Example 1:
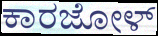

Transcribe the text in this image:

ಕಾರಜೋಳ್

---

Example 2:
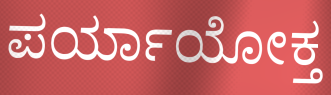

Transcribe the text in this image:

ಪರ್ಯಾಯೋಕ್ತ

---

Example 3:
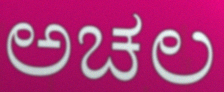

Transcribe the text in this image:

ಅಚಲ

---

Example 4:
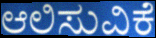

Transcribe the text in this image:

ಆಲಿಸುವಿಕೆ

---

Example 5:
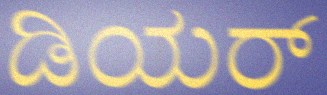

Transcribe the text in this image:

ಡಿಯರ್